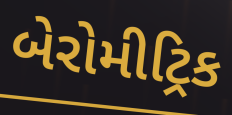
બેરોમીટ્રિક